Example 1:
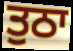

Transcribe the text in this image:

ਤੁਠਾ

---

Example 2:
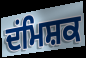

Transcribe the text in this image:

ਦਂਮਿਸ਼ਕ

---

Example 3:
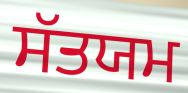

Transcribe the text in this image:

ਸੱਤਯਮ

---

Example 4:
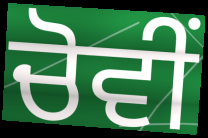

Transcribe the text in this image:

ਚੋਵੀਂ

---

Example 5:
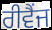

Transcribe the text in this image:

ਰੀਵੈਂਜ